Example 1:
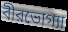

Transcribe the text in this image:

বীরভোগ্যা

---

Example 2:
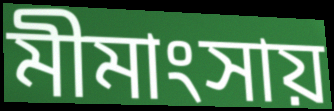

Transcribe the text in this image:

মীমাংসায়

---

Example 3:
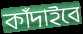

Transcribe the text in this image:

কাঁদাইবে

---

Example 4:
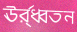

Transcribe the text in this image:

ঊর্র্ধ্বতন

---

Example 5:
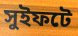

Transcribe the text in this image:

সুইফটে